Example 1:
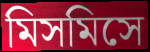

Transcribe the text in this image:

মিসমিসে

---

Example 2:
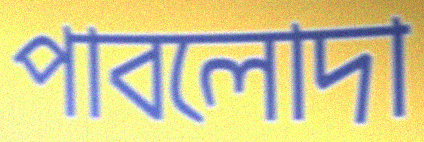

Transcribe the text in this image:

পাবলোদা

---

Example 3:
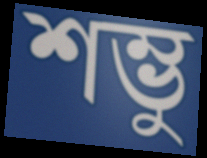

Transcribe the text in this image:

শম্ভু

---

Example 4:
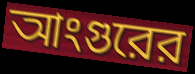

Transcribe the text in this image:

আংগুরের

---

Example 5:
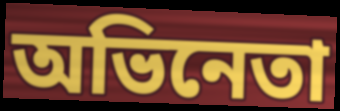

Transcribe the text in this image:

অভিনেতা